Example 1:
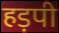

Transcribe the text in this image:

हड़पी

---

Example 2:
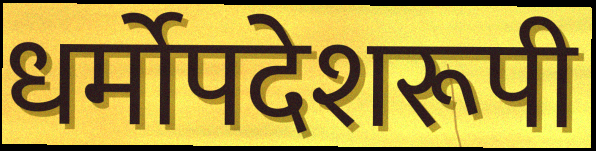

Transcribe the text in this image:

धर्मोपदेशरूपी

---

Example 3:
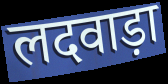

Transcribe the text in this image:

लदवाड़ा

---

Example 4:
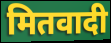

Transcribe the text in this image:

मितवादी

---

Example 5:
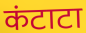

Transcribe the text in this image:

कंटाटा